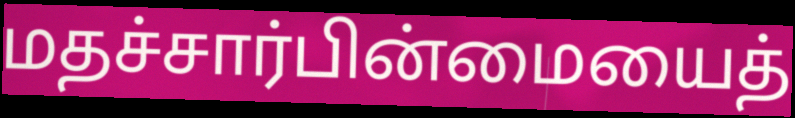
மதச்சார்பின்மையைத்